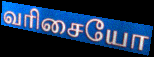
வரிசையோ